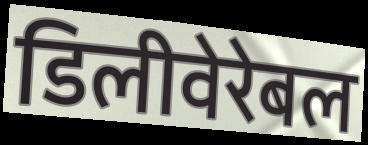
डिलीवेरेबल